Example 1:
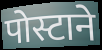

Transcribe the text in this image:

पोस्टाने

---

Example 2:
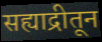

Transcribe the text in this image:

सह्याद्रीतून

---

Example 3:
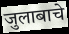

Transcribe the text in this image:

जुलाबाचे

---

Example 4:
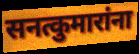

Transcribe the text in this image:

सनत्कुमारांना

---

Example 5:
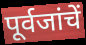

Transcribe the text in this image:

पूर्वजांचें